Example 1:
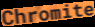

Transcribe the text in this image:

Chromite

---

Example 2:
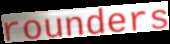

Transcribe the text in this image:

rounders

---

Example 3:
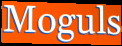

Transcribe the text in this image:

Moguls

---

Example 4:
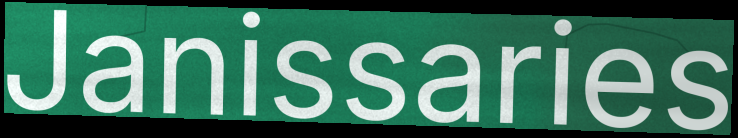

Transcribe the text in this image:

Janissaries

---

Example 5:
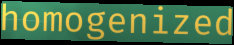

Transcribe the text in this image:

homogenized